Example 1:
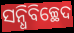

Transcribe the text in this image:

ସନ୍ଧିବିଚ୍ଛେଦ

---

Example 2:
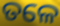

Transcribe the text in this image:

ତଳେ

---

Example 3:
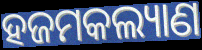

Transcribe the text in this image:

ହଜମକଲ୍ୟାଣ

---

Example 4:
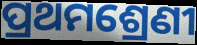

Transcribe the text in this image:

ପ୍ରଥମଶ୍ରେଣୀ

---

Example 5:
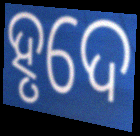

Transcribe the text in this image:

ହୃଦେ